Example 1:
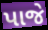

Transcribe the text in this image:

પાજે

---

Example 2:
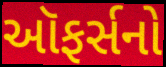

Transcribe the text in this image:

ઑફર્સનો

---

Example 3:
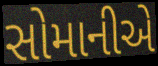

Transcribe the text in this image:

સોમાનીએ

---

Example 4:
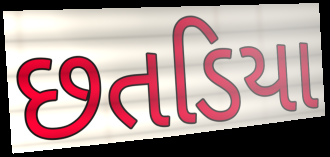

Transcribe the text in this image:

છતડિયા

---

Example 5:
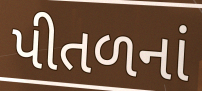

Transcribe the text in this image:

પીતળનાં